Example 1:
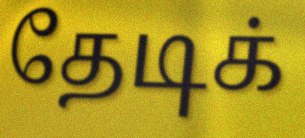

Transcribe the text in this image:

தேடிக்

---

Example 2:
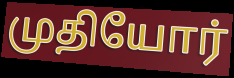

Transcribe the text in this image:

முதியோர்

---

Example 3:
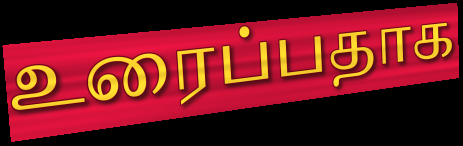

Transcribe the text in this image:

உரைப்பதாக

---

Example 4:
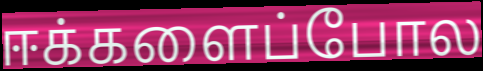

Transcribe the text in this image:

ஈக்களைப்போல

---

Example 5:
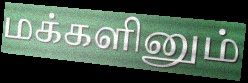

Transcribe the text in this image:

மக்களினும்